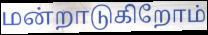
மன்றாடுகிறோம்